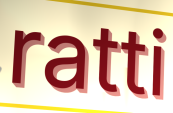
ratti